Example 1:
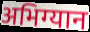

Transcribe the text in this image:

अभिग्यान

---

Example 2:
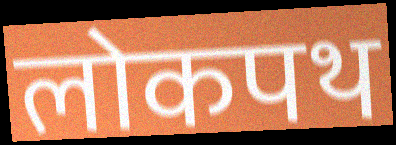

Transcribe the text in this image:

लोकपथ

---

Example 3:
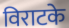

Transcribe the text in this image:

विराटके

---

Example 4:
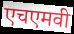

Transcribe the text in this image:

एचएमवी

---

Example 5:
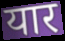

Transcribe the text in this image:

यार